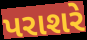
પરાશરે